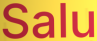
Salu